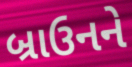
બ્રાઉનને